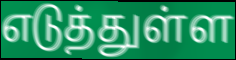
எடுத்துள்ள